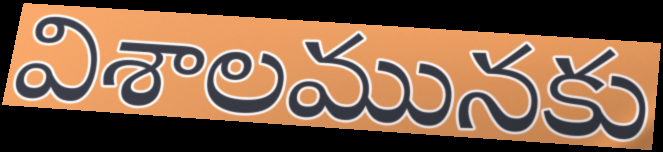
విశాలమునకు